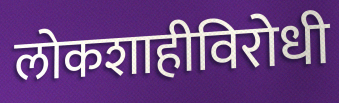
लोकशाहीविरोधी